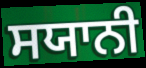
ਸਯਾਨੀ